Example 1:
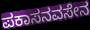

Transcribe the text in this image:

ಪಕಾಸನವಸೇನ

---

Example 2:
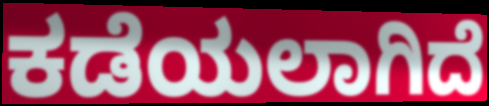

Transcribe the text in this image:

ಕಡೆಯಲಾಗಿದೆ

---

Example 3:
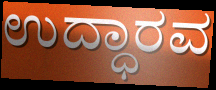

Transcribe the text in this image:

ಉದ್ಧಾರವ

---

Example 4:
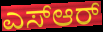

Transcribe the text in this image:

ಎಸ್ಆರ್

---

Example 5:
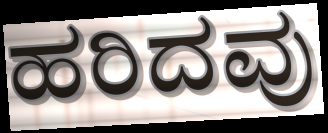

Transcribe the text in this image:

ಹರಿದವು